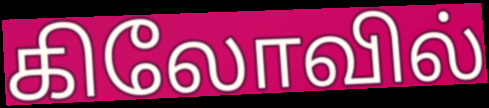
கிலோவில்